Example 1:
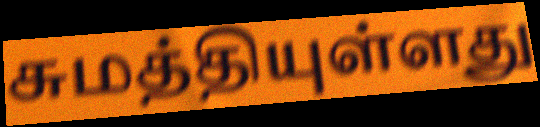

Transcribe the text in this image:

சுமத்தியுள்ளது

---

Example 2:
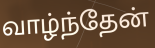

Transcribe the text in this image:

வாழ்ந்தேன்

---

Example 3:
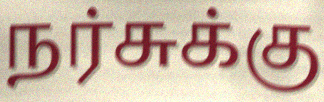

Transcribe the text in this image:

நர்சுக்கு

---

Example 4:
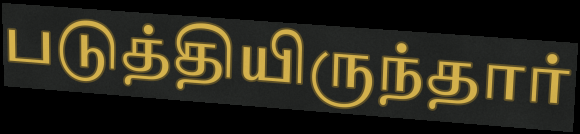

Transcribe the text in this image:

படுத்தியிருந்தார்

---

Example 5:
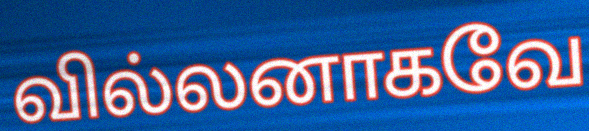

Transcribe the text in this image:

வில்லனாகவே